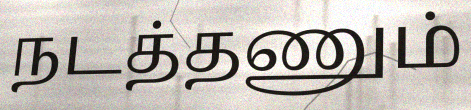
நடத்தணும்